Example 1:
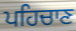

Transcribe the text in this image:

ਪਹਿਚਾਣ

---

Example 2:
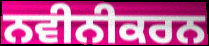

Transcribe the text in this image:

ਨਵੀਨੀਕਰਨ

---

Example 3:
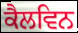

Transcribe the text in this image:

ਕੈਲਵਿਨ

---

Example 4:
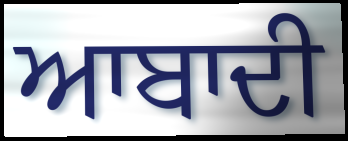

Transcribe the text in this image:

ਆਬਾਦੀ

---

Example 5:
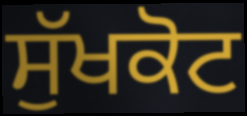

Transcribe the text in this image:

ਸੁੱਖਕੋਟ